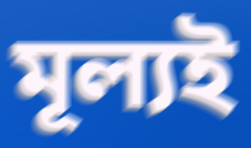
মূল্যই